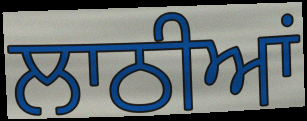
ਲਾਠੀਆਂ